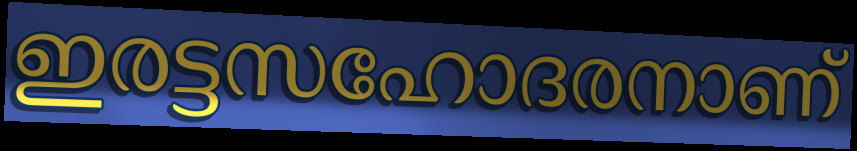
ഇരട്ടസഹോദരനാണ്